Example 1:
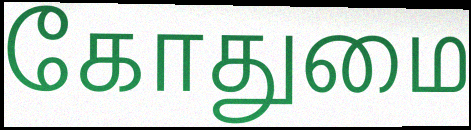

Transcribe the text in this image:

கோதுமை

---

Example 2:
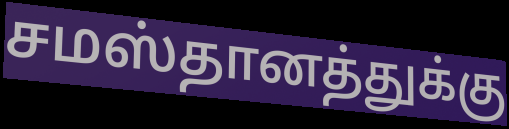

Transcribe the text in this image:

சமஸ்தானத்துக்கு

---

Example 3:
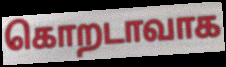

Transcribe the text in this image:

கொறடாவாக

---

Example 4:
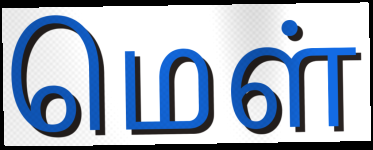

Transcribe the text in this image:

மெள்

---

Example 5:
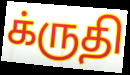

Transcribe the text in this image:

க்ருதி